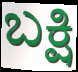
ಬಕ್ಷಿ